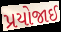
પ્રયોજાઈ